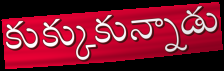
కుక్కుకున్నాడు